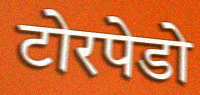
टोरपेडो